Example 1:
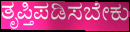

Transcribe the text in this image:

ತೃಪ್ತಿಪಡಿಸಬೇಕು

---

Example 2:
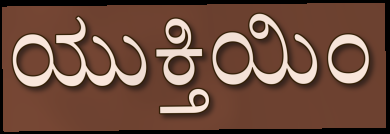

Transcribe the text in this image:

ಯುಕ್ತಿಯಿಂ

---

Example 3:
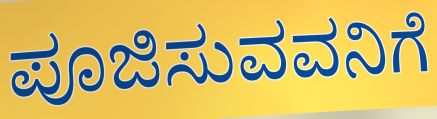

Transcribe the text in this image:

ಪೂಜಿಸುವವನಿಗೆ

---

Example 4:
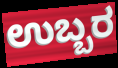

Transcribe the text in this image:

ಉಬ್ಬರ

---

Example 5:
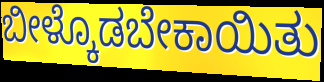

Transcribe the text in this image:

ಬೀಳ್ಕೊಡಬೇಕಾಯಿತು